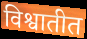
विश्वातीत